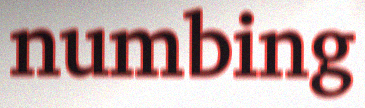
numbing